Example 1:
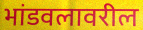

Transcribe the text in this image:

भांडवलावरील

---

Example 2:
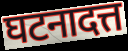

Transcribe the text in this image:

घटनादत्त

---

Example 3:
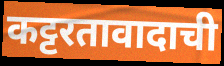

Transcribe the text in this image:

कट्टरतावादाची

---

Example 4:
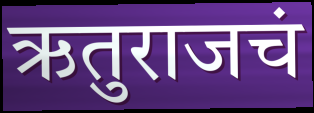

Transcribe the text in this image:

ऋतुराजचं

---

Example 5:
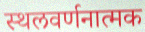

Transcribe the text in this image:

स्थलवर्णनात्मक